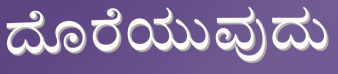
ದೊರೆಯುವುದು